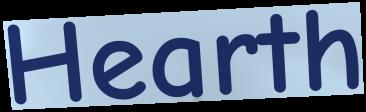
Hearth